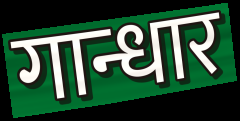
गान्धार